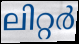
ലിറ്റർ